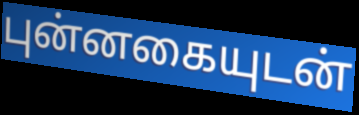
புன்னகையுடன்